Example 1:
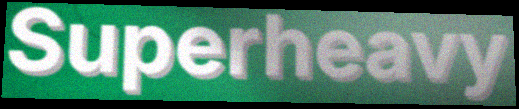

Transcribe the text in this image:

Superheavy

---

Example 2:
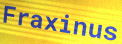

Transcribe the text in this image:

Fraxinus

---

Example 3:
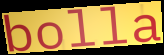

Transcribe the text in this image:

bolla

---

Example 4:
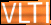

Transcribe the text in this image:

VLTI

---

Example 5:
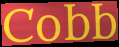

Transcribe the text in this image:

Cobb